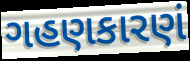
ગહણકારણં